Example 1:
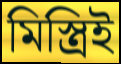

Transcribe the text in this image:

মিস্ত্রিই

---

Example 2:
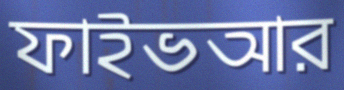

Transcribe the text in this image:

ফাইভআর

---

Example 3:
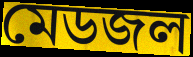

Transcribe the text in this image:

মেডজল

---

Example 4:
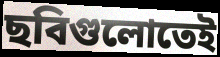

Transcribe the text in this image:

ছবিগুলোতেই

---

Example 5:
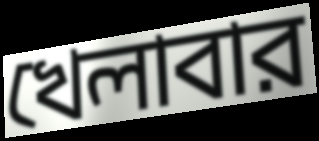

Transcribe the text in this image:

খেলাবার